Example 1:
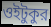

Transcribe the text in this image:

ওইটুকুর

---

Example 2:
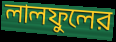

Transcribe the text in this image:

লালফুলের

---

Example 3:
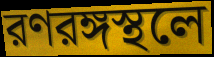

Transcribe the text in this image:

রণরঙ্গস্থলে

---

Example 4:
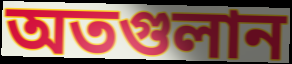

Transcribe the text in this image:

অতগুলান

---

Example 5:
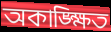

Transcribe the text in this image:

অকাঙ্ক্ষিত